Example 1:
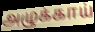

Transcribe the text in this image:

அழுக்காய்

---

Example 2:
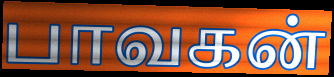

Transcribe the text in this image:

பாவகன்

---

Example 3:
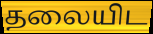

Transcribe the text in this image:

தலையிட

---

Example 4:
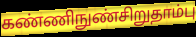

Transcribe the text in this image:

கண்ணிநுண்சிறுதாம்பு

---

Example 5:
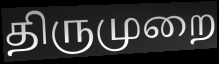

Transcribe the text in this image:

திருமுறை